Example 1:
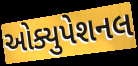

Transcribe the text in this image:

ઓક્યુપેશનલ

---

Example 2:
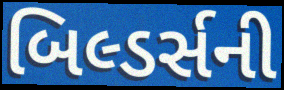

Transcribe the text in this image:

બિલ્ડર્સની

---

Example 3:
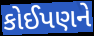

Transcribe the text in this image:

કોઈપણને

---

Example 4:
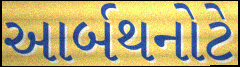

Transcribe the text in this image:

આર્બથનોટે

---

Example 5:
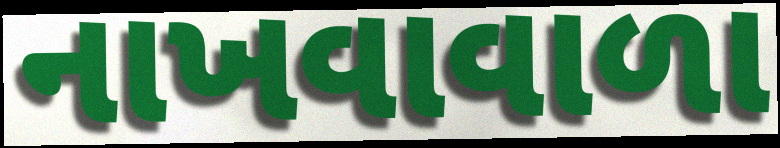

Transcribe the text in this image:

નાખવાવાળા